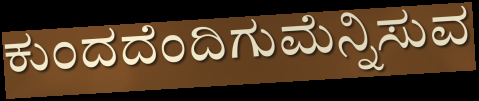
ಕುಂದದೆಂದಿಗುಮೆನ್ನಿಸುವ